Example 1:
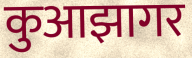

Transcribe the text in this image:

कुआझागर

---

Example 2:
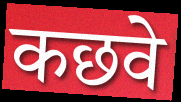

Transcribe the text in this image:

कछवे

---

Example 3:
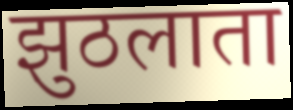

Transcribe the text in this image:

झुठलाता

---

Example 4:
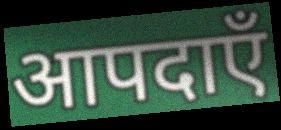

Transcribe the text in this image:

आपदाएँ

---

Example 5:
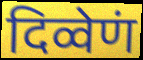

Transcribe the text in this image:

दिव्वेणं